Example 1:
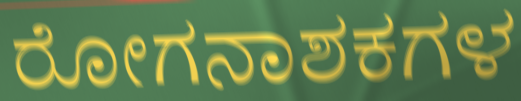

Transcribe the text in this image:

ರೋಗನಾಶಕಗಳ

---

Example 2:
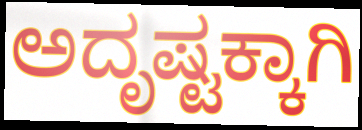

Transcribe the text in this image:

ಅದೃಷ್ಟಕ್ಕಾಗಿ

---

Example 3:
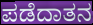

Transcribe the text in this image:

ಪಡೆದಾತನ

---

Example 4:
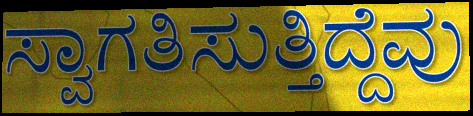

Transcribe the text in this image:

ಸ್ವಾಗತಿಸುತ್ತಿದ್ದೆವು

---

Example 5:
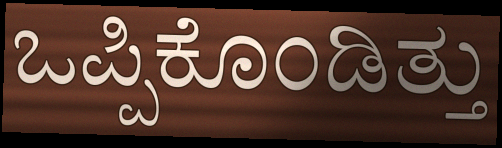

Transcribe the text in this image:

ಒಪ್ಪಿಕೊಂಡಿತ್ತು